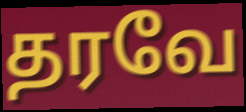
தரவே